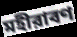
মহীরাবণ